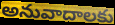
అనువాదాలకు